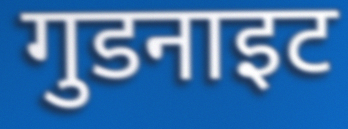
गुडनाइट